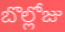
బొల్లోజు